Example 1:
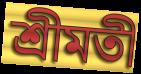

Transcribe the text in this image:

শ্ৰীমতী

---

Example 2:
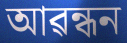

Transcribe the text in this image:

আৱন্ধন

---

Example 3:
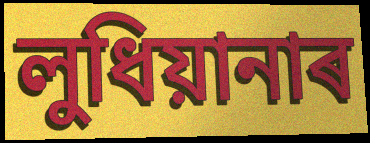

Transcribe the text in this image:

লুধিয়ানাৰ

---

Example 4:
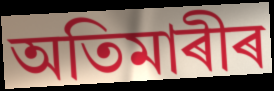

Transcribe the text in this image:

অতিমাৰীৰ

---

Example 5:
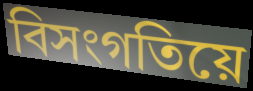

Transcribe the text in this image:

বিসংগতিয়ে